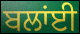
ਬਲਾਂਈ